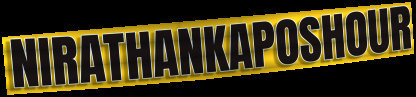
NIRATHANKAPOSHOUR